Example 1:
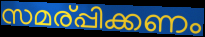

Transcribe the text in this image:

സമര്പ്പിക്കണം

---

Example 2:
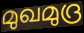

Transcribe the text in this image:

മുഖമുദ്ര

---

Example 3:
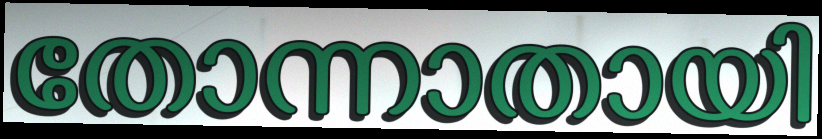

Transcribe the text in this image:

തോന്നാതായി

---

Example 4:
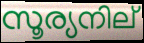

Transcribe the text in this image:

സൂര്യനില്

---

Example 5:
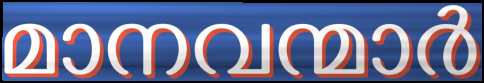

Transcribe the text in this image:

മാനവന്മാർ